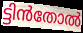
ട്ടിൻതോൽ